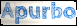
Apurbo